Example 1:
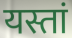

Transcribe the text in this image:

यस्तां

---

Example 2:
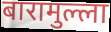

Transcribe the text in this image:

बारामुल्ला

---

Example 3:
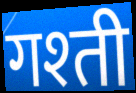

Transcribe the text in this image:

गश्‍ती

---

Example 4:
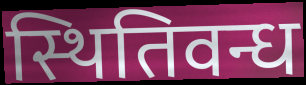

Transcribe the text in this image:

स्थितिवन्ध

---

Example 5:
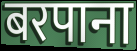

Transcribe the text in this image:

बरपाना